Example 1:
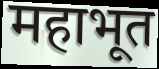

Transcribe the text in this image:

महाभूत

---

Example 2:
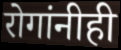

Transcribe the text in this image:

रोगांनीही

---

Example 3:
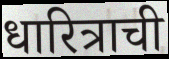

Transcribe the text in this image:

धारित्राची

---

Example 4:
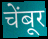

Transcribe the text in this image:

चेंबूर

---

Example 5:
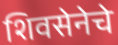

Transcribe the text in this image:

शिवसेनेचे